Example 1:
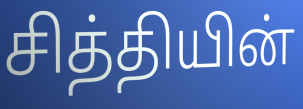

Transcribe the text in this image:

சித்தியின்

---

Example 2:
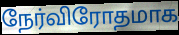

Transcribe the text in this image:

நேர்விரோதமாக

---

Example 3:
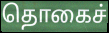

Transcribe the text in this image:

தொகைச்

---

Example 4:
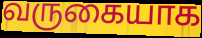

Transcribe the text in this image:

வருகையாக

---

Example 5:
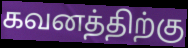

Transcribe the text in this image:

கவனத்திற்கு